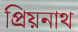
প্রিয়নাথ